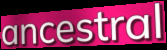
ancestral